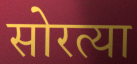
सोरत्या